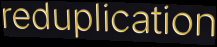
reduplication